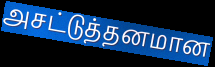
அசட்டுத்தனமான